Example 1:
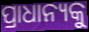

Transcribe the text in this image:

ପ୍ରାଧାନ୍ୟକୁ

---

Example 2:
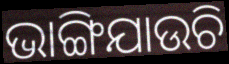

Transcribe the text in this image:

ଭାଙ୍ଗିଯାଉଚି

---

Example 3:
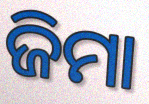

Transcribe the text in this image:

ଜିମା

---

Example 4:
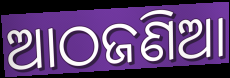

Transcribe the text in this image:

ଆଠଜଣିଆ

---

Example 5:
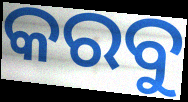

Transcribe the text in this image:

କରବୁ